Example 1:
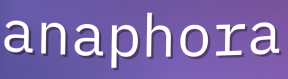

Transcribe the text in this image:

anaphora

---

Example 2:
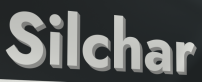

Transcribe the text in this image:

Silchar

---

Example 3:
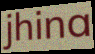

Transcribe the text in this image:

jhina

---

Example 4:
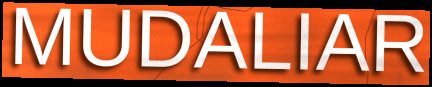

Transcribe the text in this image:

MUDALIAR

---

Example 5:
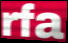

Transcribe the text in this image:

rfa